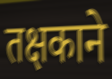
तक्षकाने